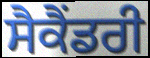
ਸੈਕੈਂਡਰੀ